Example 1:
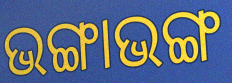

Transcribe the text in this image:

ଭଙ୍ଗାଭଙ୍ଗ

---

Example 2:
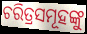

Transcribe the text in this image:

ଚରିତ୍ରସମୂହଙ୍କୁ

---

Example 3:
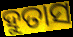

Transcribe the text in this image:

ହୁତାସ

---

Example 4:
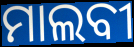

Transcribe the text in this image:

ମାଲବୀ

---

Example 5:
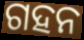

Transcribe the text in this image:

ଗହନ